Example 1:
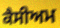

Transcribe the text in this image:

ਕੈਸੀਅਮ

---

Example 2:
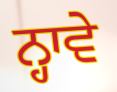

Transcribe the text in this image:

ਨ੍ਹਾਵੇ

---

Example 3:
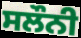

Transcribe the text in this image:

ਸਲੌਨੀ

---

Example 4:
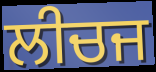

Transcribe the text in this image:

ਲੀਚਜ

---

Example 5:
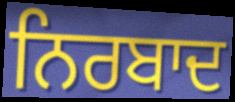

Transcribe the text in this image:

ਨਿਰਬਾਦ